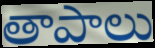
తాపాలు